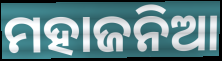
ମହାଜନିଆ